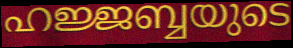
ഹജ്ജബ്ബയുടെ